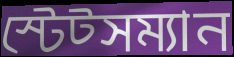
স্টেট্সম্যান